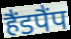
हैंडपैंप